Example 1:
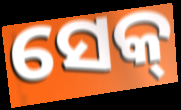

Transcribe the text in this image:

ସେକ୍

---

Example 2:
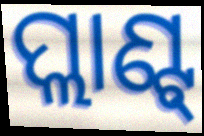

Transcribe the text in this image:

ପ୍ଲାଣ୍ଟ୍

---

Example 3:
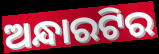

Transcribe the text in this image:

ଅନ୍ଧାରଟିର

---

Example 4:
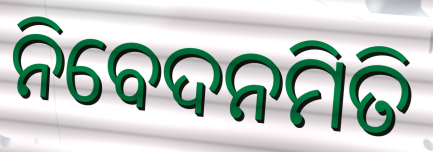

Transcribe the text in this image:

ନିବେଦନମିତି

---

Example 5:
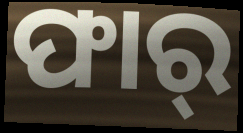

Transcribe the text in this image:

ଫାର୍